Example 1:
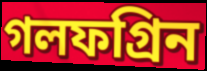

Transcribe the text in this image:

গলফগ্রিন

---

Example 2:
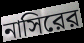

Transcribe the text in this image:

নাসিরের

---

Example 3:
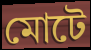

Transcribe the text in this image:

মোটে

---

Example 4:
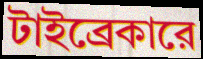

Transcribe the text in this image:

টাইব্রেকারে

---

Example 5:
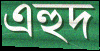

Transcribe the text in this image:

এহুদ